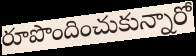
రూపొందించుకున్నారో